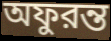
অফুরন্ত